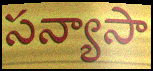
సన్యాసా